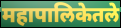
महापालिकेतले